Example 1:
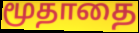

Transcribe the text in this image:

மூதாதை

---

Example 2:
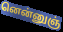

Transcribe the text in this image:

னென்னுஞ்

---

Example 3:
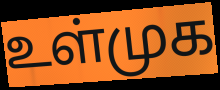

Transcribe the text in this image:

உள்முக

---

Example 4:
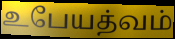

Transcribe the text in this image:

உபேயத்வம்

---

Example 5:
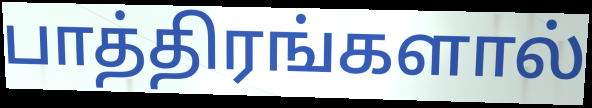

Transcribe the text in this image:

பாத்திரங்களால்